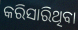
କରିସାରିଥିବା